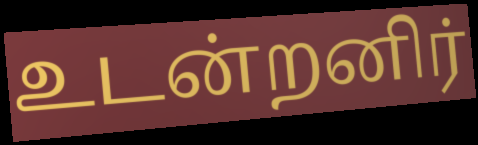
உடன்றனிர்